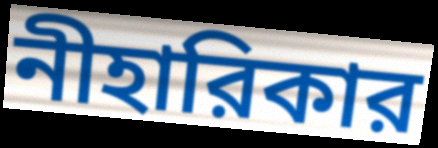
নীহারিকার